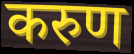
करुण